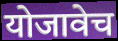
योजावेच